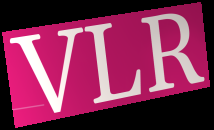
VLR